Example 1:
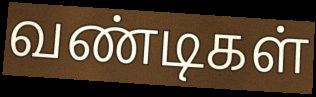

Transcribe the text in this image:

வண்டிகள்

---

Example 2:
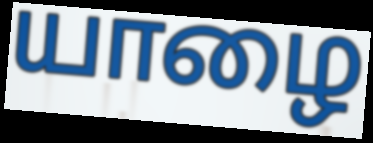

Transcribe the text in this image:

யாழை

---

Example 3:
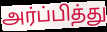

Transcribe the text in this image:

அர்ப்பித்து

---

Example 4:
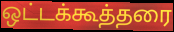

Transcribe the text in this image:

ஒட்டக்கூத்தரை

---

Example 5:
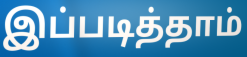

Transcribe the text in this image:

இப்படித்தாம்